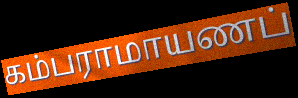
கம்பராமாயணப்